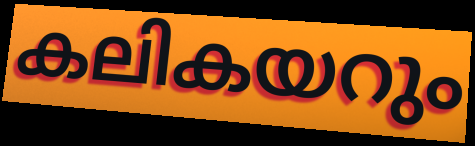
കലികയറും